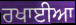
ਰਖਾਈਆ